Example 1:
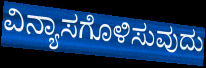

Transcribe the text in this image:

ವಿನ್ಯಾಸಗೊಳಿಸುವುದು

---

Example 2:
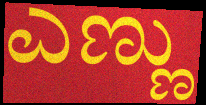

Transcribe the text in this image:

ಎಣ್ಣು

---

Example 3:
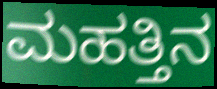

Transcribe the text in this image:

ಮಹತ್ತಿನ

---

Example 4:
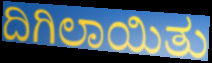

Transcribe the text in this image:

ದಿಗಿಲಾಯಿತು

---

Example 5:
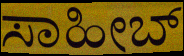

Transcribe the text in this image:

ಸಾಹೀಬ್